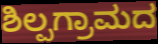
ಶಿಲ್ಪಗ್ರಾಮದ